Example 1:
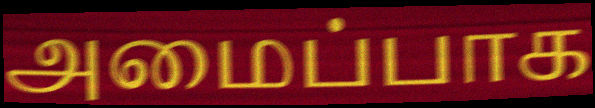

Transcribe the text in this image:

அமைப்பாக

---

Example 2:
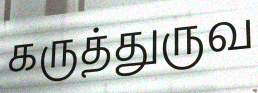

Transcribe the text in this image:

கருத்துருவ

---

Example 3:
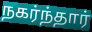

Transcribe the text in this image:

நகர்ந்தார்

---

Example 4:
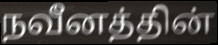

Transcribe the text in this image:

நவீனத்தின்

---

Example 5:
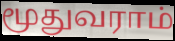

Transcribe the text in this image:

மூதுவராம்